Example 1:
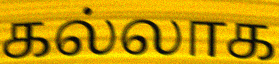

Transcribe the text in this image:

கல்லாக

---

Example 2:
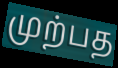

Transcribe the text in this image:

முற்பத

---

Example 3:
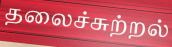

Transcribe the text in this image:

தலைச்சுற்றல்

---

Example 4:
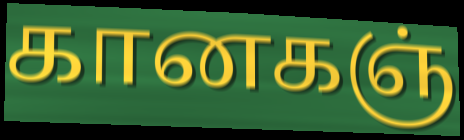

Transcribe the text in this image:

கானகஞ்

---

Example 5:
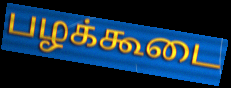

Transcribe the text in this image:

பழக்கூடை